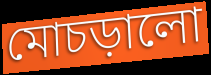
মোচড়ালো